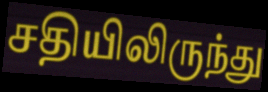
சதியிலிருந்து